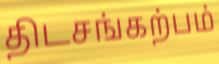
திடசங்கற்பம்